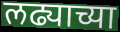
लढ्याच्या